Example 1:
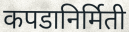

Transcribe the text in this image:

कपडानिर्मिती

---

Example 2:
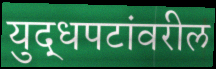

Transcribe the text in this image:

युद्धपटांवरील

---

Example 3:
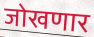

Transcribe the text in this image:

जोखणार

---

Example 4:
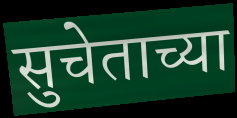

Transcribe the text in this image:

सुचेताच्या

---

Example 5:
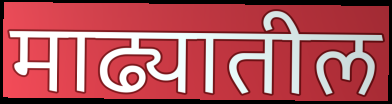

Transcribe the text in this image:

माढ्यातील